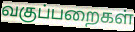
வகுப்பறைகள்